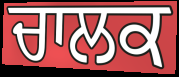
ਚਾਲਕ